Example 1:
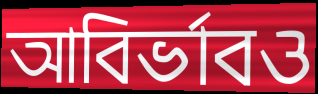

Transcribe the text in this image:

আবির্ভাবও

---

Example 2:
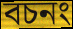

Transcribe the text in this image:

বচনং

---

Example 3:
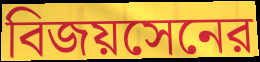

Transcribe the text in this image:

বিজয়সেনের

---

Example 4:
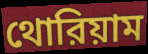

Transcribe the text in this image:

থোরিয়াম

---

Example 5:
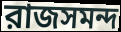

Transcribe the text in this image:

রাজসমন্দ